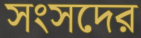
সংসদের